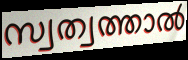
സ്വത്വത്താൽ